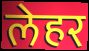
लेहर